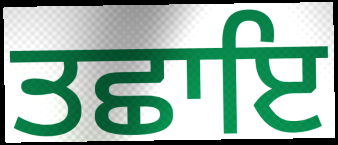
ਤਛਾਇ